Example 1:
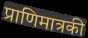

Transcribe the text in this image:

प्राणिमात्रकी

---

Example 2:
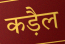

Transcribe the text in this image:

कड़ैल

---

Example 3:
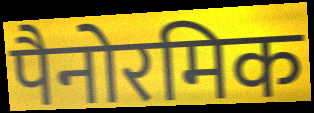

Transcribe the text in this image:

पैनोरमिक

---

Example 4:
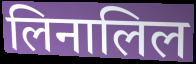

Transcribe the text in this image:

लिनालिल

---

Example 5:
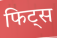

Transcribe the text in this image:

फिट्स